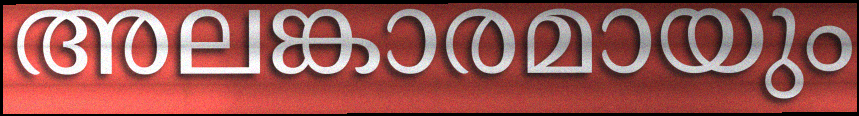
അലങ്കാരമായും